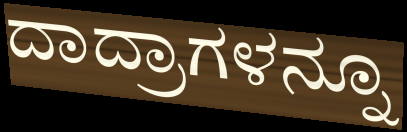
ದಾದ್ರಾಗಳನ್ನೂ